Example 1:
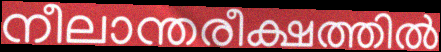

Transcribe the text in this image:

നീലാന്തരീക്ഷത്തിൽ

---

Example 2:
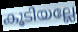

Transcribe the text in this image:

കൂടിയല്ലേ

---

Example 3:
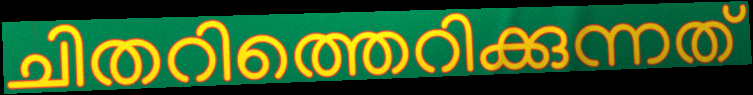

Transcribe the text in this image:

ചിതറിത്തെറിക്കുന്നത്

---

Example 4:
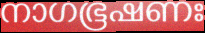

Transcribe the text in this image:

നാഗഭൂഷണഃ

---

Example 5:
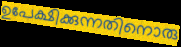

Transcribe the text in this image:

ഉപേക്ഷിക്കുന്നതിനൊരു